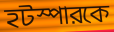
হটস্পারকে